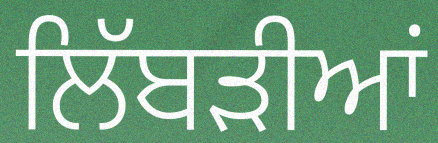
ਲਿੱਬੜੀਆਂ